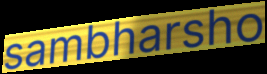
sambharsho